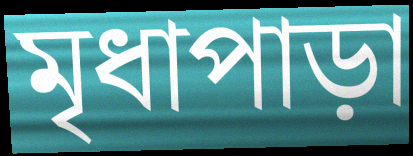
মৃধাপাড়া